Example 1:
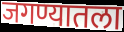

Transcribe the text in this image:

जगण्यातला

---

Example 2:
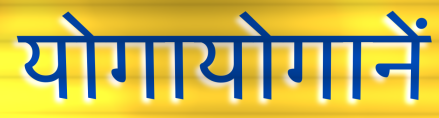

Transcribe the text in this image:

योगायोगानें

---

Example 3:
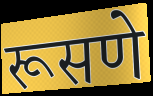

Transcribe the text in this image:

रूसणे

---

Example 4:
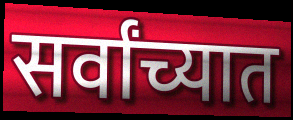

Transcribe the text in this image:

सर्वांच्यात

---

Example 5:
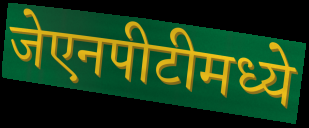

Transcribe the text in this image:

जेएनपीटीमध्ये